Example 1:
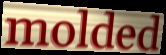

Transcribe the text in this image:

molded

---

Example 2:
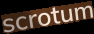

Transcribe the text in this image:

scrotum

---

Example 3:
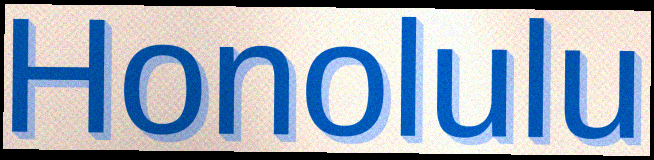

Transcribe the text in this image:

Honolulu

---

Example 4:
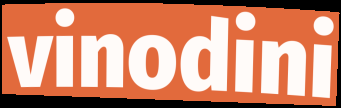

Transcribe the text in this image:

vinodini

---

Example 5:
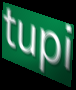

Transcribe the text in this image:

tupi